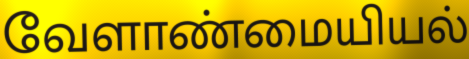
வேளாண்மையியல்